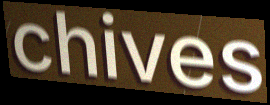
chives